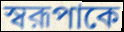
স্বরূপাকে